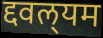
द्दवल्यम